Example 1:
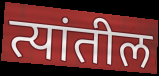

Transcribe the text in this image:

त्यांतील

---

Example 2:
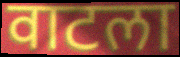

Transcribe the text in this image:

वाटला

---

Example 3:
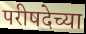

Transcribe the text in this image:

परीषदेच्या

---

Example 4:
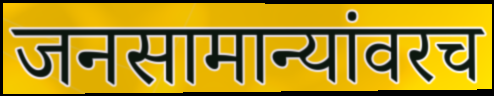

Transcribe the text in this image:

जनसामान्यांवरच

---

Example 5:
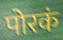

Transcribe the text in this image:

पोरकं